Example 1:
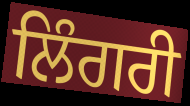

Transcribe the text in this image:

ਲਿੰਗਰੀ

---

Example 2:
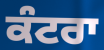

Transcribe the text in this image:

ਕੰਟਰਾ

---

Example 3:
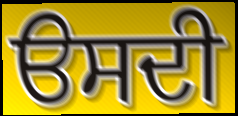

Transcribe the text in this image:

ੳਸਦੀ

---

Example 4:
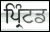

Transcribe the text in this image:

ਪ੍ਰਿੰਟਡ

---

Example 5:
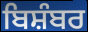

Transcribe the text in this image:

ਬਿਸ਼ੰਬਰ